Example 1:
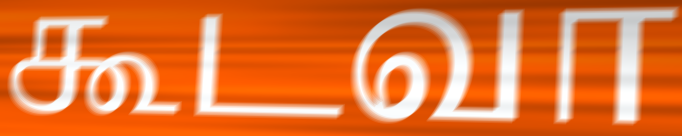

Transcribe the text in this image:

கூடவா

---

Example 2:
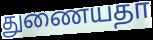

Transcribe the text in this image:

துணையதா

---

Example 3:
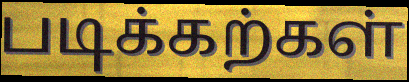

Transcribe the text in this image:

படிக்கற்கள்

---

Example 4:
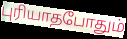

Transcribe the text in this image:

புரியாதபோதும்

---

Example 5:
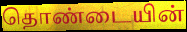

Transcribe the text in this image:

தொண்டையின்